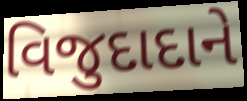
વિજુદાદાને